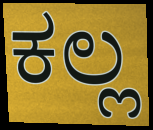
ಕಲ್ಲ